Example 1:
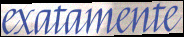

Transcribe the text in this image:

exatamente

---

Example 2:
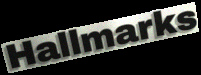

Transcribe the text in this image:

Hallmarks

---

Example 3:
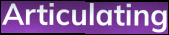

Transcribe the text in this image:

Articulating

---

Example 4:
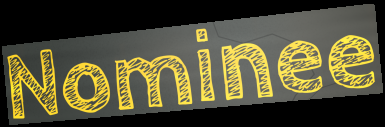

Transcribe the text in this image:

Nominee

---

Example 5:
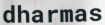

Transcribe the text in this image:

dharmas